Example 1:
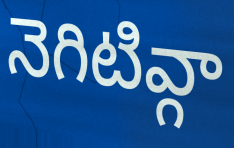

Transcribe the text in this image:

నెగిటివ్గా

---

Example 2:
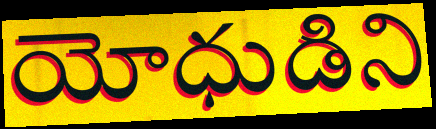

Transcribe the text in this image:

యోధుడిని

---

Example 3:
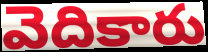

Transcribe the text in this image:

వెదికారు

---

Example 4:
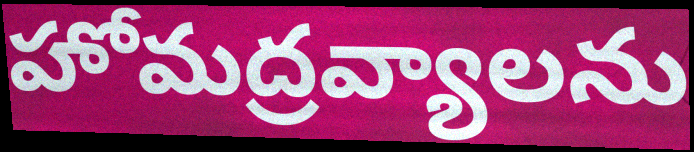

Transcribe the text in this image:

హోమద్రవ్యాలను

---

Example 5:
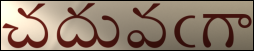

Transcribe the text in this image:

చదువఁగా